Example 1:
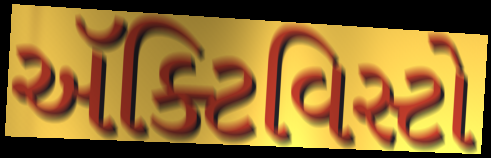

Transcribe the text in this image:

ઍક્ટિવિસ્ટો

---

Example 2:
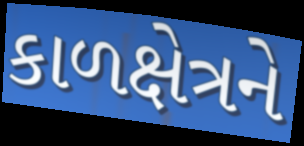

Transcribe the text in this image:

કાળક્ષેત્રને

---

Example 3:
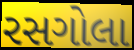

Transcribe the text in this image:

રસગોલા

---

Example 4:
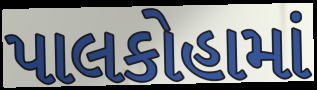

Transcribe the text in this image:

પાલકોહામાં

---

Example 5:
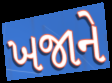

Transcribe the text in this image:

ખજાને